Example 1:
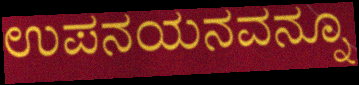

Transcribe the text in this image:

ಉಪನಯನವನ್ನೂ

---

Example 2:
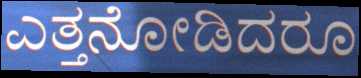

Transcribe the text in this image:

ಎತ್ತನೋಡಿದರೂ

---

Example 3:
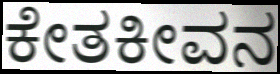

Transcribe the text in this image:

ಕೇತಕೀವನ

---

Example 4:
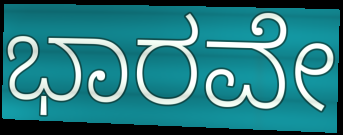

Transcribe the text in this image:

ಭಾರವೇ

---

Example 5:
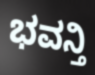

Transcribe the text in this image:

ಭವನ್ತಿ